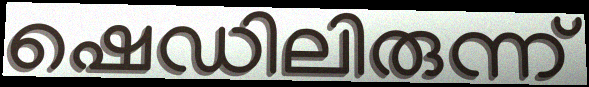
ഷെഡിലിരുന്ന്